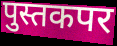
पुस्तकपर